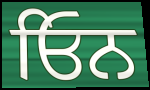
ਓਿਨ